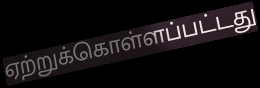
ஏற்றுக்கொள்ளப்பட்டது